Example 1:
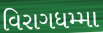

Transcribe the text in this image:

વિરાગધમ્મા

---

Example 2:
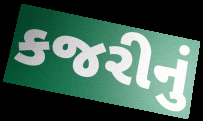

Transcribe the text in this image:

કજરીનું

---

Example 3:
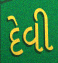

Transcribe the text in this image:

દેવી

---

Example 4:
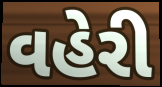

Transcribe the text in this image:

વહેરી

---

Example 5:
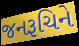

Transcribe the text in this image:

જનરૂચિને